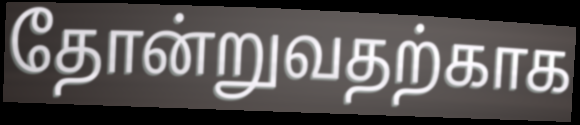
தோன்றுவதற்காக